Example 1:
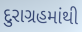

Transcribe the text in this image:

દુરાગ્રહમાંથી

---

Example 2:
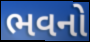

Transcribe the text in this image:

ભવનો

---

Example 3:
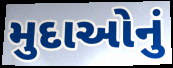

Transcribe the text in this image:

મુદાઓનું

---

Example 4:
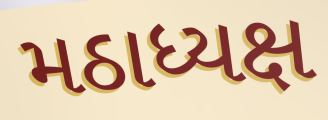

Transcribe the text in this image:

મઠાધ્યક્ષ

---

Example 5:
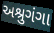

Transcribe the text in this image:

અશ્રુગંગા